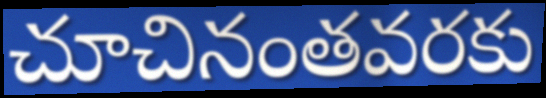
చూచినంతవరకు